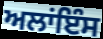
ਅਲਾਂਇੰਸ